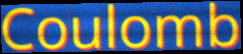
Coulomb